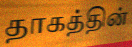
தாகத்தின்